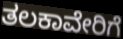
ತಲಕಾವೇರಿಗೆ